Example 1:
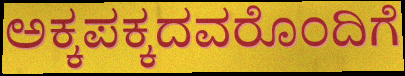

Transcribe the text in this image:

ಅಕ್ಕಪಕ್ಕದವರೊಂದಿಗೆ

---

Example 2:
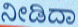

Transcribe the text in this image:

ನೀಡಿದಾ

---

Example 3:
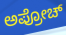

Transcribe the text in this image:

ಅಪ್ರೋಚ್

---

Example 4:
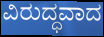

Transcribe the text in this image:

ವಿರುದ್ಧವಾದ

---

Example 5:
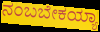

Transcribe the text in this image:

ನಂಬಬೇಕಯ್ಯಾ